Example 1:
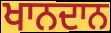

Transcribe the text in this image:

ਖਾਨਦਾਨ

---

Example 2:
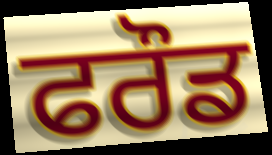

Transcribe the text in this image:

ਫਰੌਡ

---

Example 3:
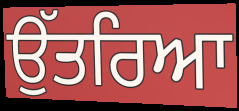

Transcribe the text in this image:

ਉੱਤਰਿਆ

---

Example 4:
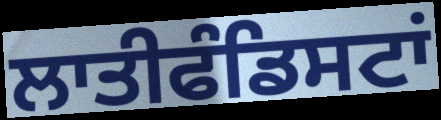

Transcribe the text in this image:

ਲਾਤੀਫੰਡਿਸਟਾਂ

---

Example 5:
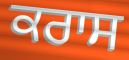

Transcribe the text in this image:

ਕਰਾਸ